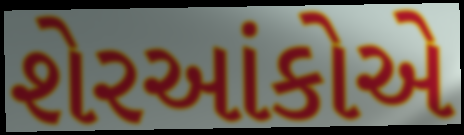
શેરઆંકોએ